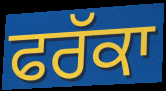
ਫਰੱਕਾ